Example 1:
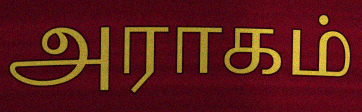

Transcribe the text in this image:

அராகம்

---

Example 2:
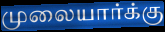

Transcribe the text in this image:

முலையார்க்கு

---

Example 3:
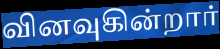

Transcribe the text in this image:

வினவுகின்றார்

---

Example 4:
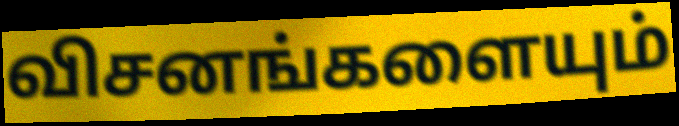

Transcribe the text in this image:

விசனங்களையும்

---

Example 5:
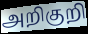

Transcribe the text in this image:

அறிகுறி